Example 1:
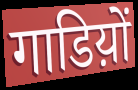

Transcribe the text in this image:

गाडिय़ों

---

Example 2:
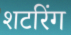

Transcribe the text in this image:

शटरिंग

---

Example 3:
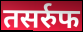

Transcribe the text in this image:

तसर्रुफ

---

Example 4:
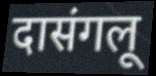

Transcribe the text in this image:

दासंगलू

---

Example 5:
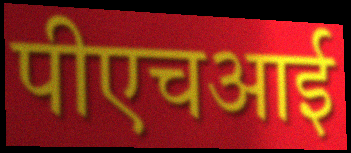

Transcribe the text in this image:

पीएचआई